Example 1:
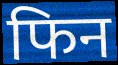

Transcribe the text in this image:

फिन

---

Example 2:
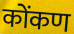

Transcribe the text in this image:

कोंकण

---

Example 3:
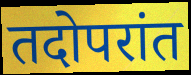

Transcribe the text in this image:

तदोपरांत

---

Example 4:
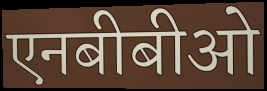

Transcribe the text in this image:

एनबीबीओ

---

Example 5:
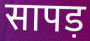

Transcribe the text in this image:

सापड़